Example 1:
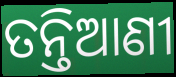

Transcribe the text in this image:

ତନ୍ତିଆଣୀ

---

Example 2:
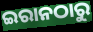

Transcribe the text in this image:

ଇରାନଠାରୁ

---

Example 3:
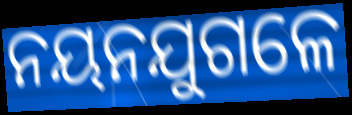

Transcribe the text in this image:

ନୟନଯୁଗଳେ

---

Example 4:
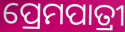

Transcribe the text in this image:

ପ୍ରେମପାତ୍ରୀ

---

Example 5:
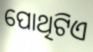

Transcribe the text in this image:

ପୋଥିଟିଏ